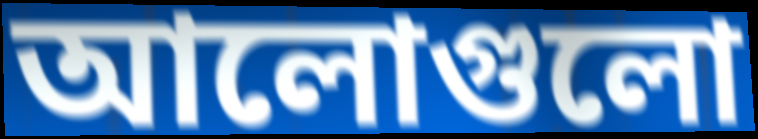
আলোগুলো